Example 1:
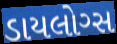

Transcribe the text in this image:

ડાયલોગ્સ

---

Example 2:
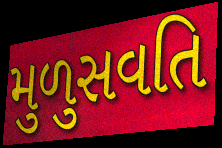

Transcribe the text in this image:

મુળુસવતિ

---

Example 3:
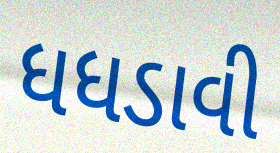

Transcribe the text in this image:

ધધડાવી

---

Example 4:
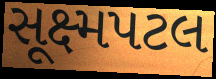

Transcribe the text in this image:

સૂક્ષ્મપટલ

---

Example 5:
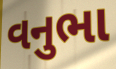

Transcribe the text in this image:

વનુભા